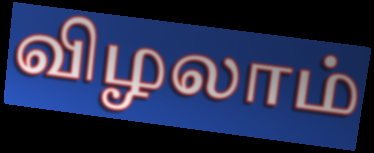
விழலாம்